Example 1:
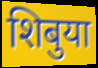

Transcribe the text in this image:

शिबुया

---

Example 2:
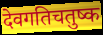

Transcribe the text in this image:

देवगतिचतुष्क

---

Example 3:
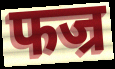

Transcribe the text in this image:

फज्र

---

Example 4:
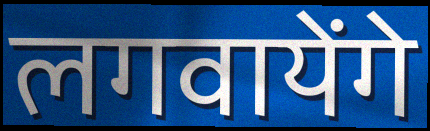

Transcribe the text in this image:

लगवायेंगे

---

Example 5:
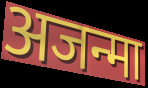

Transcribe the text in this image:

अजन्‍मा